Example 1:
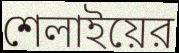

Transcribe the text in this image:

শেলাইয়ের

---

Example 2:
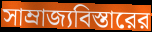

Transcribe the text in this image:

সাম্রাজ্যবিস্তারের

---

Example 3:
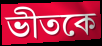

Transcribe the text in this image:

ভীতকে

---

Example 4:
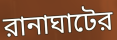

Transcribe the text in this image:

রানাঘাটের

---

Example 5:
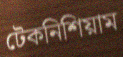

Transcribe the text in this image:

টেকনিশিয়াম